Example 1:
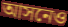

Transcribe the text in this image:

আসনেও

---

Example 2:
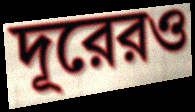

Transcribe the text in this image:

দূরেরও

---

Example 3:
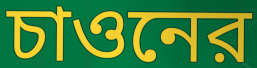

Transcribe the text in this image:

চাওনের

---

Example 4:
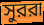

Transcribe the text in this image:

সুররা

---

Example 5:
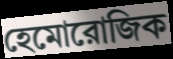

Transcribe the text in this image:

হেমোরোজিক